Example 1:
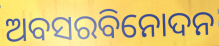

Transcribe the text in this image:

ଅବସରବିନୋଦନ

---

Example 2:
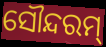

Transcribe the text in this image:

ସୌନ୍ଦରମ୍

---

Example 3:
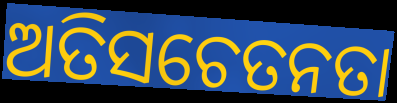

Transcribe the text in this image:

ଅତିସଚେତନତା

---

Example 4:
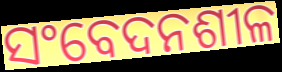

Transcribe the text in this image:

ସଂବେଦନଶୀଳ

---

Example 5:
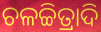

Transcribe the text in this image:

ଚଳଚ୍ଚିତ୍ରାଦି